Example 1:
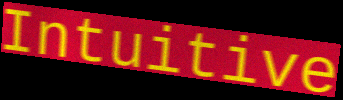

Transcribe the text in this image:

Intuitive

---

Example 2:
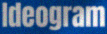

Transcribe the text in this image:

Ideogram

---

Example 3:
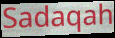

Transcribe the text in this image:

Sadaqah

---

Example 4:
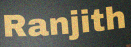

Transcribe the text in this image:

Ranjith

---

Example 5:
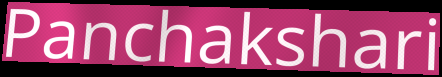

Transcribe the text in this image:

Panchakshari